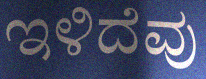
ಇಳಿದೆವು